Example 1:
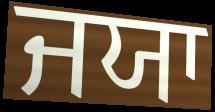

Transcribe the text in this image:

ਜਯਾ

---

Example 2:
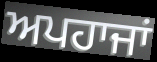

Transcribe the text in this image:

ਅਪਹਾਜਾਂ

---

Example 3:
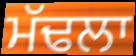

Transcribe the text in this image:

ਮੱਢਲਾ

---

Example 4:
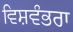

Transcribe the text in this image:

ਵਿਸ਼ਵੰਭਰਾ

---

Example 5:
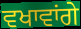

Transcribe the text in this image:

ਵਖਾਵਾਂਗੇ